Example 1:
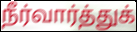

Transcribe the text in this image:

நீர்வார்த்துக்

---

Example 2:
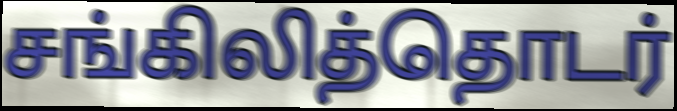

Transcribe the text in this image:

சங்கிலித்தொடர்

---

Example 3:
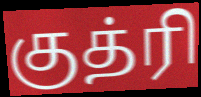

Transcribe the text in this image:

குத்ரி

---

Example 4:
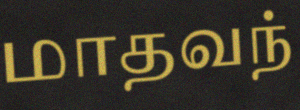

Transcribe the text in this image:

மாதவந்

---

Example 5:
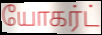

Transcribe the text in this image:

யோகர்ட்